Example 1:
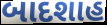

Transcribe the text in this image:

બાદશાહ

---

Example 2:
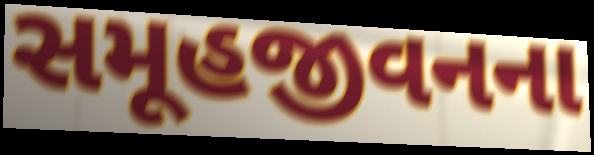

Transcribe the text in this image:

સમૂહજીવનના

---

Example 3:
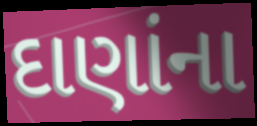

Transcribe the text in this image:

દાણાંના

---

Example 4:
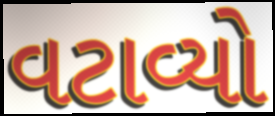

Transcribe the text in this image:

વટાવ્યો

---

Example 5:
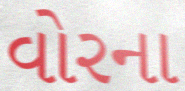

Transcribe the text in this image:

વોરના